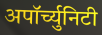
अपॉर्च्युनिटी